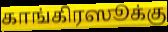
காங்கிரஸூக்கு